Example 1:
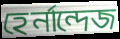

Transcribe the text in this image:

হের্নান্দেজ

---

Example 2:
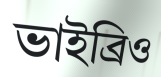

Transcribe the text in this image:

ভাইব্রিও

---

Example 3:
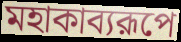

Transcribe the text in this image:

মহাকাব্যরূপে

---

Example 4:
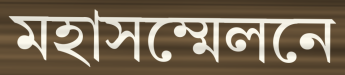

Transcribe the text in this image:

মহাসম্মেলনে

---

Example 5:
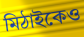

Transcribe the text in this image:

মিঠাইকেও